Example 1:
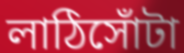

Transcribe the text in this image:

লাঠিসোঁটা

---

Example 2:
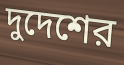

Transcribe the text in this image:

দুদেশের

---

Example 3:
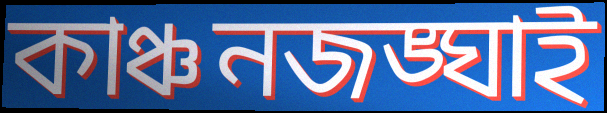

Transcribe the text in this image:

কাঞ্চনজঙ্ঘাই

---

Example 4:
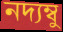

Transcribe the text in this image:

নদ্যম্বু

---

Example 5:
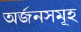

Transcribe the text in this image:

অর্জনসমূহ